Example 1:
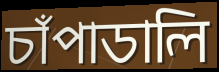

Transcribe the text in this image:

চাঁপাডালি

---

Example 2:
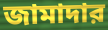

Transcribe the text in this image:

জামাদার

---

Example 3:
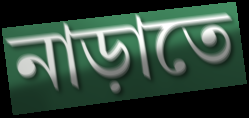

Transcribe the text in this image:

নাড়াতে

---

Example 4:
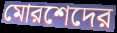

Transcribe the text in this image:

মোরশেদের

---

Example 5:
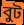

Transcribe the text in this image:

বুট